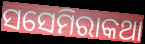
ସସେମିରାକଥା